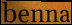
benna